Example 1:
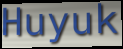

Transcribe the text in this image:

Huyuk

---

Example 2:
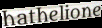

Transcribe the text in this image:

hathelione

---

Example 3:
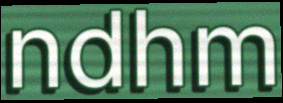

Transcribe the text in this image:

ndhm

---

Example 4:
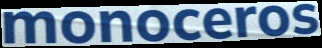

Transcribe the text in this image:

monoceros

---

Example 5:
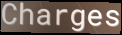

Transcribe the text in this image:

Charges